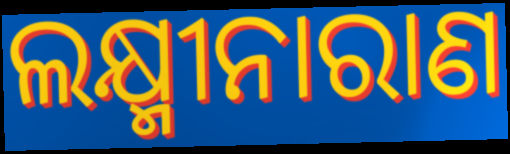
ଲକ୍ଷ୍ମୀନାରାଣ